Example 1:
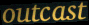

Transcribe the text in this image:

outcast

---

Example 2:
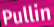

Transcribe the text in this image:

Pullin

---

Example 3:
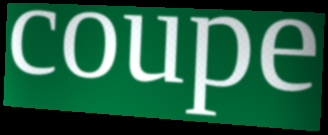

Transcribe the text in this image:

coupe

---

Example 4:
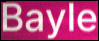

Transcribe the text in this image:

Bayle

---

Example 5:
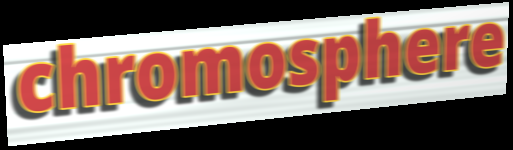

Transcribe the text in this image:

chromosphere